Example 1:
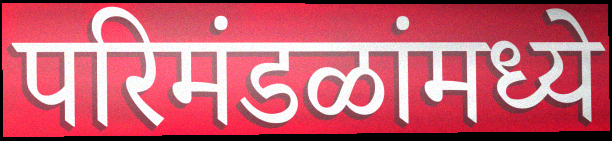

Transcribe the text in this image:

परिमंडळांमध्ये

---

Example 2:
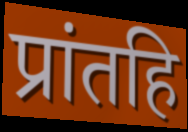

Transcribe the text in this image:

प्रांतहि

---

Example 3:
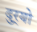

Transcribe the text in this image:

दुर्यो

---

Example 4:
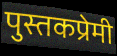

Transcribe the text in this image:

पुस्तकप्रेमी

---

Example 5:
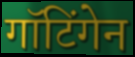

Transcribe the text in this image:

गॉटिंगेन